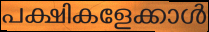
പക്ഷികളേക്കാൾ